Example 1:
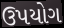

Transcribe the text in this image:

ઉપયોગ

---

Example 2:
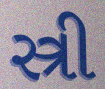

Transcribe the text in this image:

સ્ત્રી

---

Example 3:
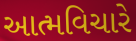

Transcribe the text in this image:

આત્મવિચારે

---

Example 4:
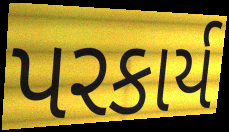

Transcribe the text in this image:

પરકાર્ય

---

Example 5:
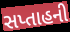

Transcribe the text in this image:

સપ્તાહની